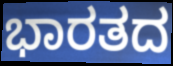
ಭಾರತದ